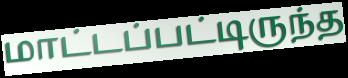
மாட்டப்பட்டிருந்த